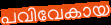
പവിവേകായ